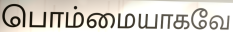
பொம்மையாகவே